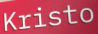
Kristo